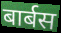
बार्बस